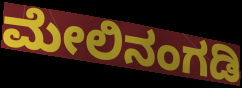
ಮೇಲಿನಂಗಡಿ